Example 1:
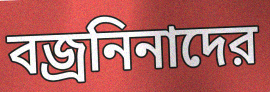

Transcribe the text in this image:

বজ্রনিনাদের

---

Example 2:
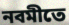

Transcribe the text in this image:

নবমীতে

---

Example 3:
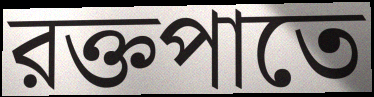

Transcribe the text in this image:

রক্তপাতে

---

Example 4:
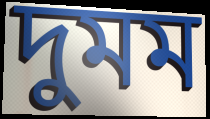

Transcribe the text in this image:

দুমম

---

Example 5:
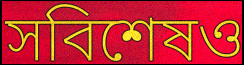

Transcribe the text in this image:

সবিশেষও